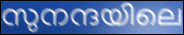
സുനന്ദയിലെ